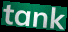
tank